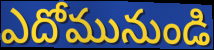
ఎదోమునుండి